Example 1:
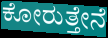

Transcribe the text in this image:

ಕೋರುತ್ತೇನೆ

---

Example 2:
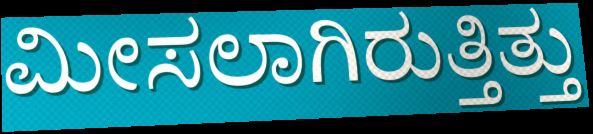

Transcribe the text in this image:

ಮೀಸಲಾಗಿರುತ್ತಿತ್ತು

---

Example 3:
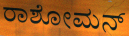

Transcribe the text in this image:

ರಾಶೋಮನ್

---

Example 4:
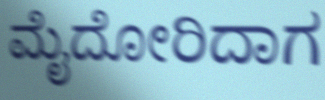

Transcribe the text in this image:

ಮೈದೋರಿದಾಗ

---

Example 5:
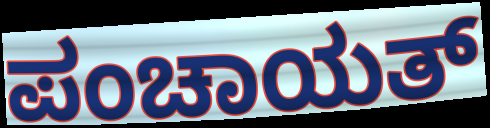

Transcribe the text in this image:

ಪಂಚಾಯತ್